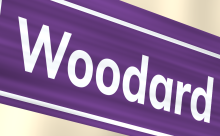
Woodard